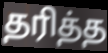
தரித்த